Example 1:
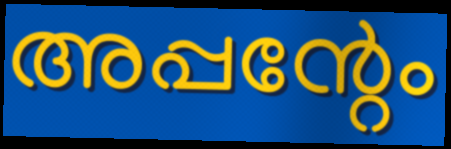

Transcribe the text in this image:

അപ്പന്റേം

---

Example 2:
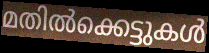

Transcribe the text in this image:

മതിൽക്കെട്ടുകൾ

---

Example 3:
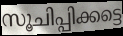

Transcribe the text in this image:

സൂചിപ്പിക്കട്ടെ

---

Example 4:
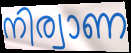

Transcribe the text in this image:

നിര്വാണ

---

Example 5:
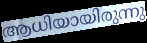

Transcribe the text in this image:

ആധിയായിരുന്നു